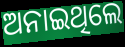
ଅନାଇଥିଲେ